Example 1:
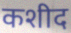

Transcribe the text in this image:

कशीद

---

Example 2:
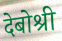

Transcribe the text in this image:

देबोश्री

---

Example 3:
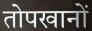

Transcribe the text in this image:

तोपखानों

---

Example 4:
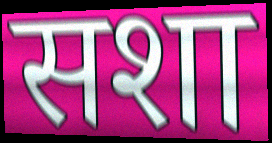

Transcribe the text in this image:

सशा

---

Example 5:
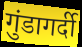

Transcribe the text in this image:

गुंडागर्दी